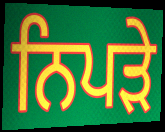
ਨਿਪੜੇ